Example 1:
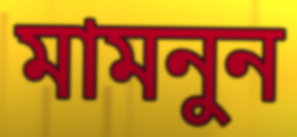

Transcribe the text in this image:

মামনুন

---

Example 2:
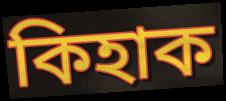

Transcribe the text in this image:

কিহাক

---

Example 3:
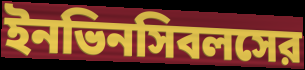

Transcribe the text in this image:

ইনভিনসিবলসের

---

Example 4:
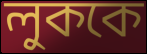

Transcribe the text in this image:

লুককে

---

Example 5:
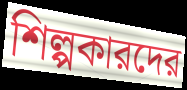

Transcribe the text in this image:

শিল্পকারদের